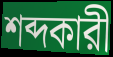
শব্দকারী